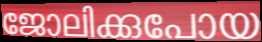
ജോലിക്കുപോയ